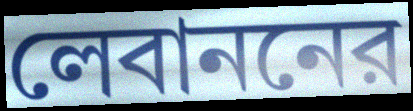
লেবাননের